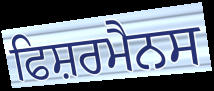
ਫਿਸ਼ਰਮੈਨਸ